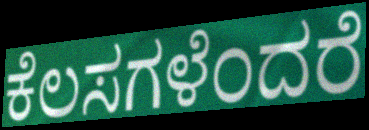
ಕೆಲಸಗಳೆಂದರೆ